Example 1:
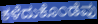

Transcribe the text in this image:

ಕಳೆದುಕೊಂಡೆವು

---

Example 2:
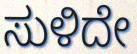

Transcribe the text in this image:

ಸುಳಿದೇ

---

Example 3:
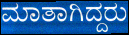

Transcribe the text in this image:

ಮಾತಾಗಿದ್ದರು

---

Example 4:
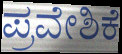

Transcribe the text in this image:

ಪ್ರವೇಶಿಕೆ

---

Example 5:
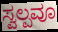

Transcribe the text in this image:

ಸ್ವಲ್ಪವೂ